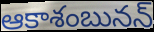
ఆకాశంబునన్